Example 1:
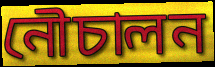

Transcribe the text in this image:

নৌচালন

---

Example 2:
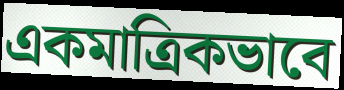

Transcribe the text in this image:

একমাত্রিকভাবে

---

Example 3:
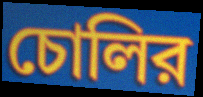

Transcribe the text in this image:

চোলির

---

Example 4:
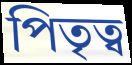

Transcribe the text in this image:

পিতৃত্ব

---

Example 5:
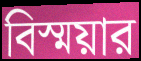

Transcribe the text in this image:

বিস্ময়ার